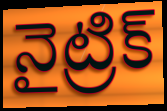
నైట్రిక్